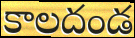
కాలదండ